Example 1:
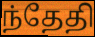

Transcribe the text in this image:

ந்தேதி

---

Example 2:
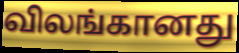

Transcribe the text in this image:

விலங்கானது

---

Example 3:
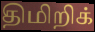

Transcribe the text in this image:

திமிறிக்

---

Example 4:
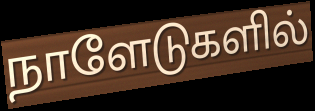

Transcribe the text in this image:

நாளேடுகளில்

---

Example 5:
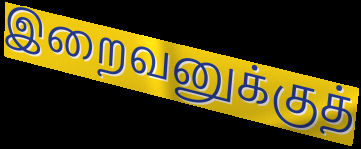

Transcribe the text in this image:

இறைவனுக்குத்